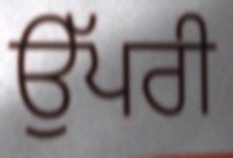
ਉੱਪਰੀ